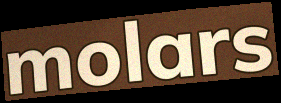
molars